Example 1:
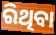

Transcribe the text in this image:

ରିଥିବା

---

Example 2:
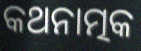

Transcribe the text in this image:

କଥନାତ୍ମକ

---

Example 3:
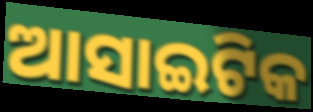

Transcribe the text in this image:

ଆସାଇଟିକ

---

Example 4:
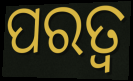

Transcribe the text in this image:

ପରତ୍ୱ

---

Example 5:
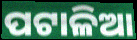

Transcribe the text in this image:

ପଟାଳିଆ